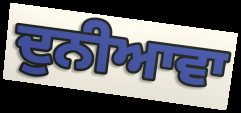
ਦੁਨੀਆਵਾ